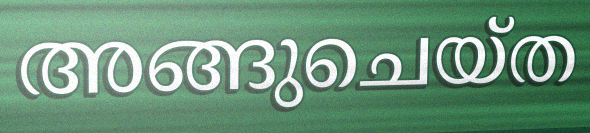
അങ്ങുചെയ്ത